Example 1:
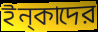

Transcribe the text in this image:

ইন্‌কাদের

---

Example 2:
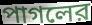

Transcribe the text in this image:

পাগলের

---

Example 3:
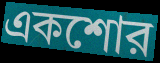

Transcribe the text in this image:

একশোর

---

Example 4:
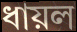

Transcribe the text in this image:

ধায়ল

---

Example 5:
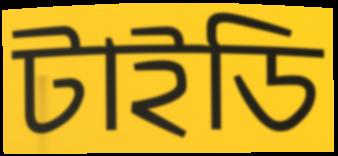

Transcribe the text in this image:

টাইডি